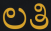
ಲತಿ